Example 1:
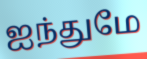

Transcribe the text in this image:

ஐந்துமே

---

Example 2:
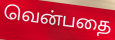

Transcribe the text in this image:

வென்பதை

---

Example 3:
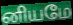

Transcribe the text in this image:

னியமே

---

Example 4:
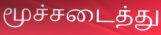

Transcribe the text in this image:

மூச்சடைத்து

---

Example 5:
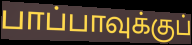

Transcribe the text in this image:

பாப்பாவுக்குப்